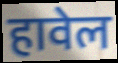
हावेल